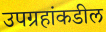
उपग्रहांकडील